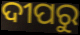
ଦୀପରୁ